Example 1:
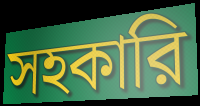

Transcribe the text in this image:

সহকারি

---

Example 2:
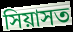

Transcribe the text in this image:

সিয়াসত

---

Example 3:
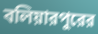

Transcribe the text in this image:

বলিয়ারপুরের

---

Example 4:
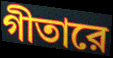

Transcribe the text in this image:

গীতারে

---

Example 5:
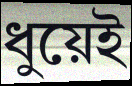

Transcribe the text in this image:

ধুয়েই